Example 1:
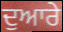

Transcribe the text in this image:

ਦੁਆਰੇ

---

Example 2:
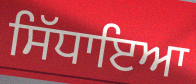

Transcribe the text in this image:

ਸਿੱਧਾਇਆ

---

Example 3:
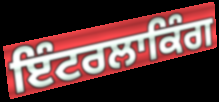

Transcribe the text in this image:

ਇੰਟਰਲਾਕਿੰਗ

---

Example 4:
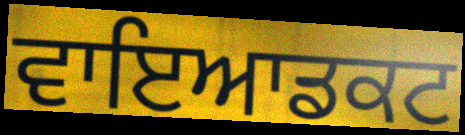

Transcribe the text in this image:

ਵਾਇਆਡਕਟ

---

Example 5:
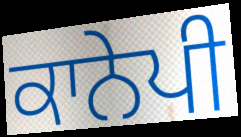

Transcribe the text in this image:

ਕਾਨੇਪੀ